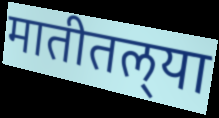
मातीतल्या